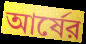
আর্ষের